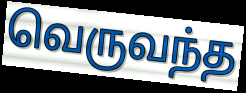
வெருவந்த